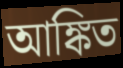
আঙ্কিত